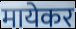
मायेकर